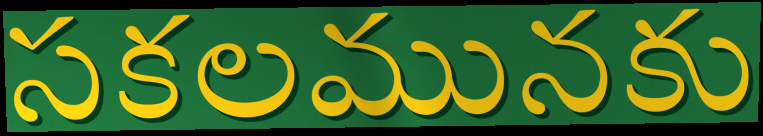
సకలమునకు